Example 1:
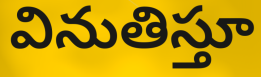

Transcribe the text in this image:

వినుతిస్తూ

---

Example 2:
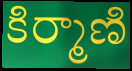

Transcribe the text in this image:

కిర్మాణి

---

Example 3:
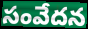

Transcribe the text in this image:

సంవేదన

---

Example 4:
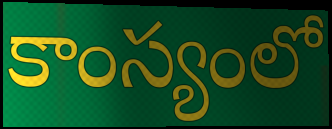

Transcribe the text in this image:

కాంస్యంలో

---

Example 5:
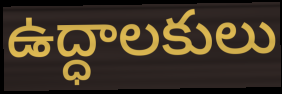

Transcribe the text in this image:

ఉద్ధాలకులు